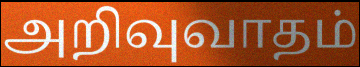
அறிவுவாதம்